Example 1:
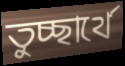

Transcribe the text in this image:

তুচ্ছার্থে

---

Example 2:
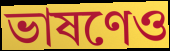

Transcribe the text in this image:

ভাষণেও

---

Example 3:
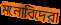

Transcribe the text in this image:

মনোবিদেরা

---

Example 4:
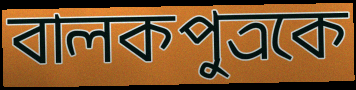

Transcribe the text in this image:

বালকপুত্রকে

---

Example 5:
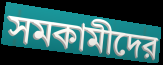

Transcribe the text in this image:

সমকামীদের